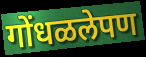
गोंधळलेपण